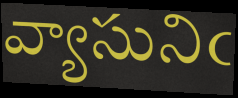
వ్యాసునిఁ